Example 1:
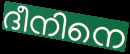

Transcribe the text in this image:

ദീനിനെ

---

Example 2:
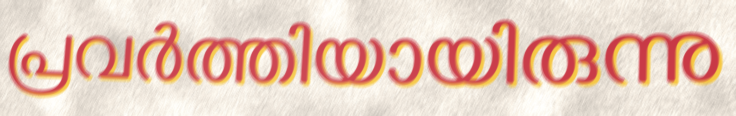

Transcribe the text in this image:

പ്രവർത്തിയായിരുന്നു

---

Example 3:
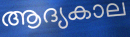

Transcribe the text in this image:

ആദ്യകാല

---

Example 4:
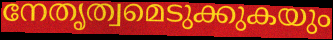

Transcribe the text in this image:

നേതൃത്വമെടുക്കുകയും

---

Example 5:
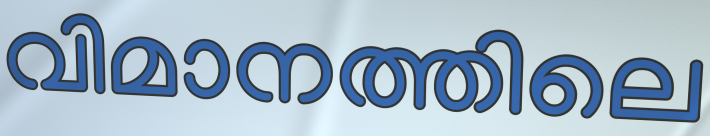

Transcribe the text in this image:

വിമാനത്തിലെ